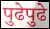
पुढेपुढे